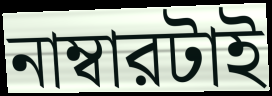
নাম্বারটাই